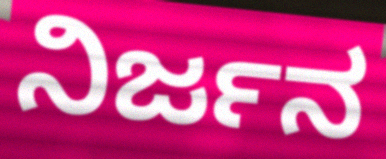
ನಿರ್ಜನ